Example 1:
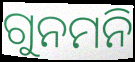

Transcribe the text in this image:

ଗୁନମନି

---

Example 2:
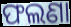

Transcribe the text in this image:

ଫଲଣା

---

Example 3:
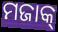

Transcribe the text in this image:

ମଜାକ୍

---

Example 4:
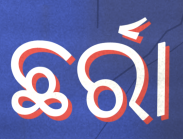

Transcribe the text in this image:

ଛର୍ରା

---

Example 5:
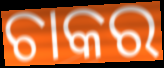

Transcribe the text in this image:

ଚାକର